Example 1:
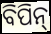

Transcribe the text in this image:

ବିପିନ୍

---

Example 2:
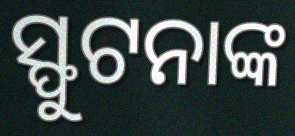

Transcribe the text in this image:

ସ୍ଫୁଟନାଙ୍କ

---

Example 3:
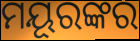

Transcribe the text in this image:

ମୟୂରଙ୍କର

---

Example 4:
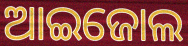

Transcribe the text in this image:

ଆଇଜୋଲ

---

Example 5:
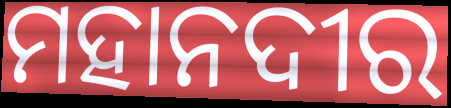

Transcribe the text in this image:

ମହାନଦୀର